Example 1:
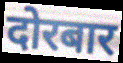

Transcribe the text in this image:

दोरबार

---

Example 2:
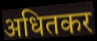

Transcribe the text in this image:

अधितकर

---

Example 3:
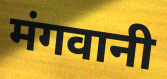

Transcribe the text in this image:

मंगवानी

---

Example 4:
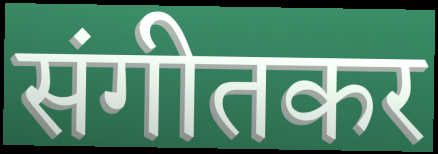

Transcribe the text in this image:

संगीतकर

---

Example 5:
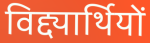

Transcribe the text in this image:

विद्द्यार्थियों